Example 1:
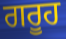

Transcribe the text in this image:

ਗਰੂਹ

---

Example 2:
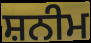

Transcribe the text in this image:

ਸ਼ਨੀਮ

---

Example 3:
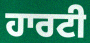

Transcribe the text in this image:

ਹਾਰਟੀ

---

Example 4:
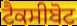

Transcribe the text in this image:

ਟੈਕਸੀਬੋਟ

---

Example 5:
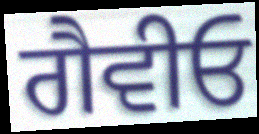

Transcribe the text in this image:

ਗੈਵੀਓ